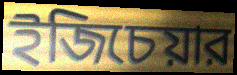
ইজিচেয়ার